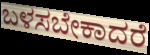
ಬಳಸಬೇಕಾದರೆ